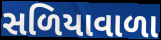
સળિયાવાળા